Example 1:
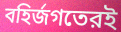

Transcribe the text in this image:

বহির্জগতেরই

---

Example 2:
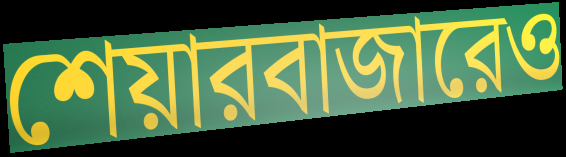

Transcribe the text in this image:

শেয়ারবাজারেও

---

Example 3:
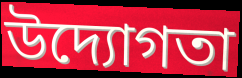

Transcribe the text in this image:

উদ্যোগতা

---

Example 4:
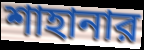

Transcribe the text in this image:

শাহানার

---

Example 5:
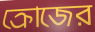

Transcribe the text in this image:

ক্রোজের